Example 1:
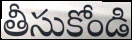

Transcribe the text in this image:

తీసుకోండి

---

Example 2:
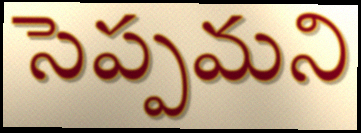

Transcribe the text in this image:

సెప్పమని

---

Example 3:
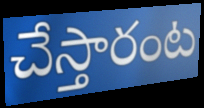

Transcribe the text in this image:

చేస్తారంట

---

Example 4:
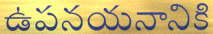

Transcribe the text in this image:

ఉపనయనానికి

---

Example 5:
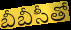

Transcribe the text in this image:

బీబీసీతో